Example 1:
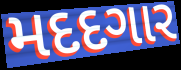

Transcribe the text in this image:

મદદગાર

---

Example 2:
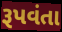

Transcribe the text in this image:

રૂપવંતા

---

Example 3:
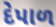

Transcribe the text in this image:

દેપાળ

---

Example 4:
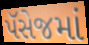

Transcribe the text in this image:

પૅસેજમાં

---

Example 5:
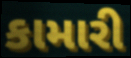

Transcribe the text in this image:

કામારી